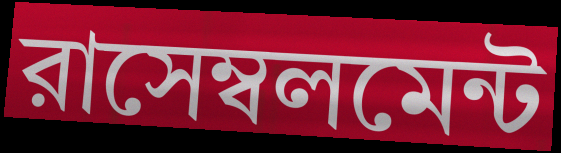
রাসেম্বলমেন্ট